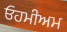
ਓਹਮੀਅਮ